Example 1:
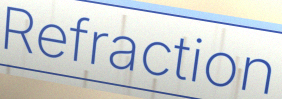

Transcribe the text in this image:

Refraction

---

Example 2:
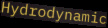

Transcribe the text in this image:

Hydrodynamic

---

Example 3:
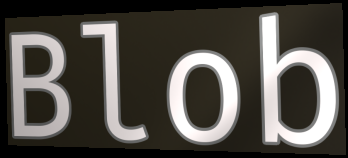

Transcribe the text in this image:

Blob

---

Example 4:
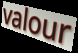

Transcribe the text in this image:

valour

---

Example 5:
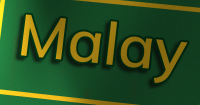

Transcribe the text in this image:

Malay